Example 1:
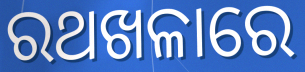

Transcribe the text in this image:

ରଥଖଳାରେ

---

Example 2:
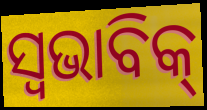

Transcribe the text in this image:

ସ୍ୱଭାବିକ୍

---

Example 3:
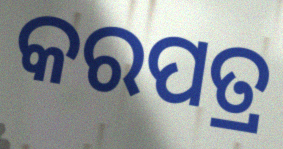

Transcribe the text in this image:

କରପତ୍ର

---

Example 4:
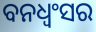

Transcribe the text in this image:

ବନଧ୍ଵଂସର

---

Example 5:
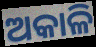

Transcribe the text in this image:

ଅକାଳି